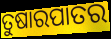
ତୁଷାରପାତର